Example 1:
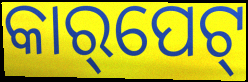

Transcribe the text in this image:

କାର୍‌ପେଟ୍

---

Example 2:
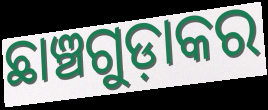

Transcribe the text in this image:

ଛାଞ୍ଚଗୁଡ଼ାକର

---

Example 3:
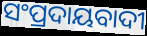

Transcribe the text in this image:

ସଂପ୍ରଦାୟବାଦୀ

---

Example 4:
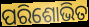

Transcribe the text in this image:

ପରିଶୋଭିତ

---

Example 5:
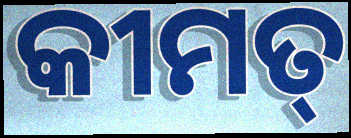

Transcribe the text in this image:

କୀମତ୍